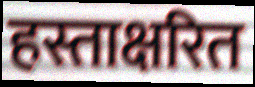
हस्ताक्षरित